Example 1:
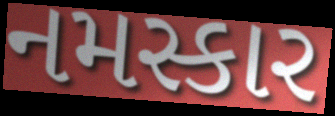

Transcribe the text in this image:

નમસ્કાર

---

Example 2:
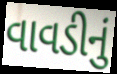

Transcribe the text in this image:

વાવડીનું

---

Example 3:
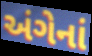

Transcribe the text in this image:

અંગેનાં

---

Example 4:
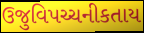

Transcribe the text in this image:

ઉજુવિપચ્ચનીકતાય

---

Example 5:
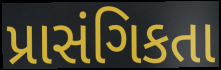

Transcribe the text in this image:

પ્રાસંગિકતા